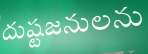
దుష్టజనులను